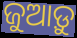
ଜୁଆଡ଼ୁ